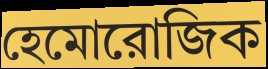
হেমোরোজিক